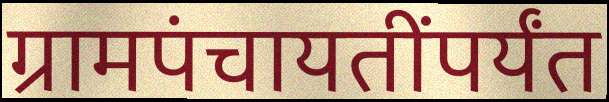
ग्रामपंचायतींपर्यंत